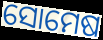
ସୋମେଷ